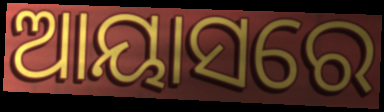
ଆୟାସରେ